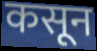
कसून